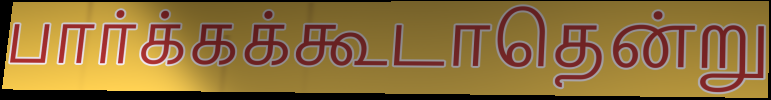
பார்க்கக்கூடாதென்று